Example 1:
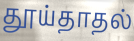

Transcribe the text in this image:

தூய்தாதல்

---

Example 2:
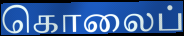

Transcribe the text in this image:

கொலைப்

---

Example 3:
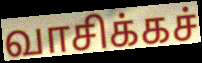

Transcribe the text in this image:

வாசிக்கச்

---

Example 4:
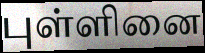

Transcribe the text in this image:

புள்ளினை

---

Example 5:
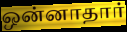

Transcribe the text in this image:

ஒன்னாதார்